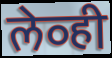
लेव्ही